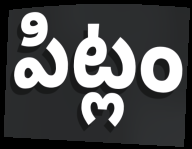
పిట్లం